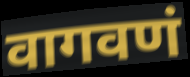
वागवणं